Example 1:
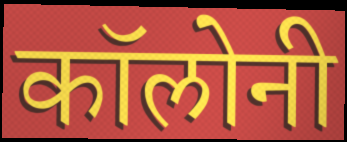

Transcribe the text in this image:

कॉलोनी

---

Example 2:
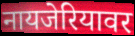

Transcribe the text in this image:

नायजेरियावर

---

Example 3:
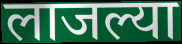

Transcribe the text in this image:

लाजल्या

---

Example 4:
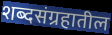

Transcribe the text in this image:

शब्दसंग्रहातील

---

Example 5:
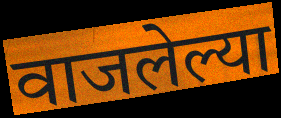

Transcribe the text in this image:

वाजलेल्या